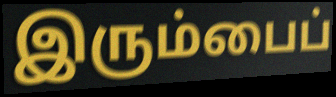
இரும்பைப்